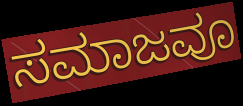
ಸಮಾಜವೂ